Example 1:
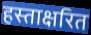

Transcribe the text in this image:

हस्ताक्षरित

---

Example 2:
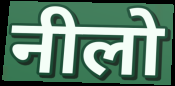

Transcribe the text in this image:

नीलो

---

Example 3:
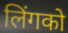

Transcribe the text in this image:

लिंगको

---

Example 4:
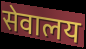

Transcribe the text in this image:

सेवालय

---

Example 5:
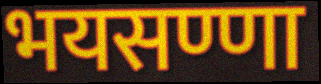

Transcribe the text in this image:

भयसण्णा